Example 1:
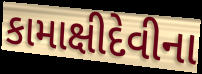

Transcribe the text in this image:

કામાક્ષીદેવીના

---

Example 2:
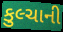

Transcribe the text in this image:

કુલ્ચાની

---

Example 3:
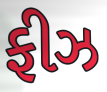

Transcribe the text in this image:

ફીઝ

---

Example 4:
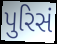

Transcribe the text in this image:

પુરિસં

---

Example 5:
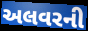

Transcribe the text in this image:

અલવરની